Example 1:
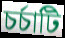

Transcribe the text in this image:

চর্চাটি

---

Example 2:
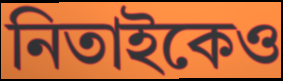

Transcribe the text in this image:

নিতাইকেও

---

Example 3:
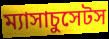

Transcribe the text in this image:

ম্যাসাচুসেটস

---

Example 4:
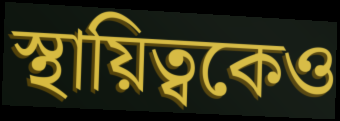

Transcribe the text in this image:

স্থায়িত্বকেও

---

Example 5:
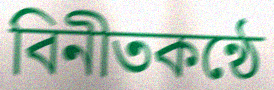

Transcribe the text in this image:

বিনীতকন্ঠে